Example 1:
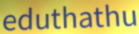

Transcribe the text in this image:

eduthathu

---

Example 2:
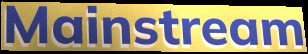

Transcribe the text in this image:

Mainstream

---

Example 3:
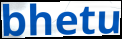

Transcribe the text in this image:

bhetu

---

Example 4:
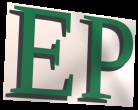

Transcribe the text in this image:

EP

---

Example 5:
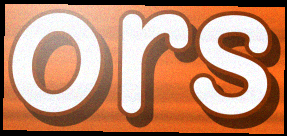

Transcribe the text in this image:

ors